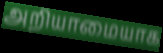
அறியாமையாக